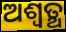
ଅଶ୍ଵତ୍ଥ